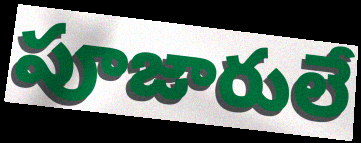
పూజారులే